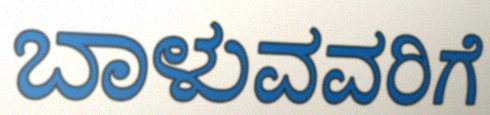
ಬಾಳುವವರಿಗೆ